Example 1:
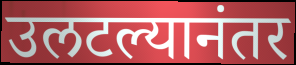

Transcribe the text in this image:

उलटल्यानंतर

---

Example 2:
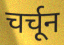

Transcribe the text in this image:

चर्चून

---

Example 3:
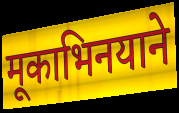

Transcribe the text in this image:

मूकाभिनयाने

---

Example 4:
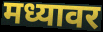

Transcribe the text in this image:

मध्यावर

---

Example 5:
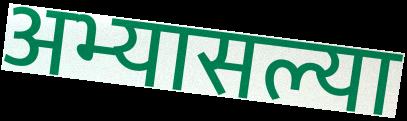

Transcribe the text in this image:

अभ्यासल्या